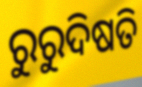
ରୁରୁଦିଷତି